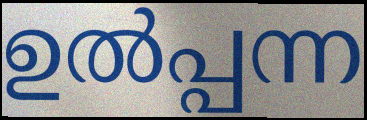
ഉൽപ്പന്ന